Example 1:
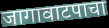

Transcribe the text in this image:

जागावाटपाचा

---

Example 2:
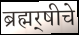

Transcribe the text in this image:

ब्रह्मर्षीचे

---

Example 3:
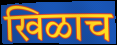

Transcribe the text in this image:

खिळाच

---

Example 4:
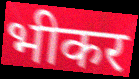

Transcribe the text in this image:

भीकर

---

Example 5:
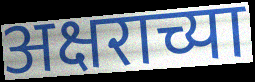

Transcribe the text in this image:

अक्षराच्या